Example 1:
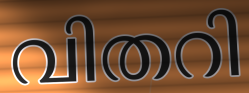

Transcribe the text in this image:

വിതറി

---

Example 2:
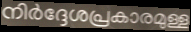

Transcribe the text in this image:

നിർദ്ദേശപ്രകാരമുള്ള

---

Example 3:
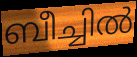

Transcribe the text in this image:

ബീച്ചിൽ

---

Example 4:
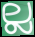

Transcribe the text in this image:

ല്ല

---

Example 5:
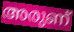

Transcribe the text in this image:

അരുണ്